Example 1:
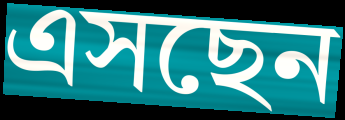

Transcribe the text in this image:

এসছেন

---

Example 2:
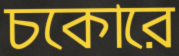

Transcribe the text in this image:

চকোরে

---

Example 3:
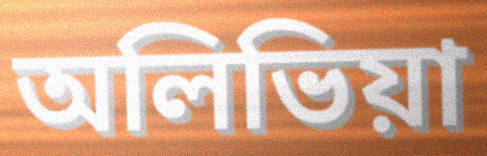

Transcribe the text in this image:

অলিভিয়া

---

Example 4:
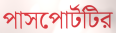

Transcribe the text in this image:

পাসপোর্টটির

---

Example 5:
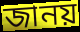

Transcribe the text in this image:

জানয়